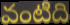
వంటిది